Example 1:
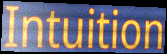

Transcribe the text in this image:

Intuition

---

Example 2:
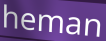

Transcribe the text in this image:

heman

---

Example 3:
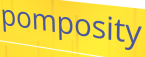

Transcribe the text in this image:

pomposity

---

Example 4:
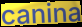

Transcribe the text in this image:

canina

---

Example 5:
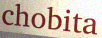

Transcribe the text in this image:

chobita